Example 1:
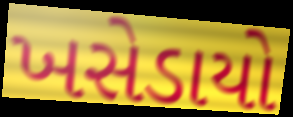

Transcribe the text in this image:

ખસેડાયો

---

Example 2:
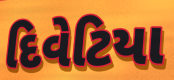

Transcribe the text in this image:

દિવેટિયા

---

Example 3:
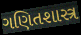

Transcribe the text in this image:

ગણિતશાસ્ત્ર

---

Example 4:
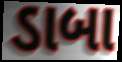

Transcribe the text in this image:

ડાબા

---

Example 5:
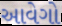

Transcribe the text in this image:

આવેગો